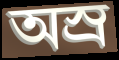
অস্র